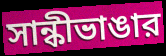
সান্কীভাঙার